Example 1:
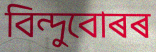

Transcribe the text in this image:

বিন্দুবোৰৰ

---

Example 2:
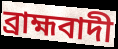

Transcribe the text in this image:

ব্ৰাহ্মবাদী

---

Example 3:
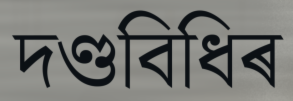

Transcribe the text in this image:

দণ্ডবিধিৰ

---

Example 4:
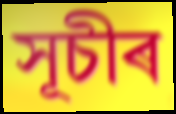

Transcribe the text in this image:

সূচীৰ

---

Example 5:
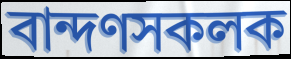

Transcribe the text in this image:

বান্দণসকলক